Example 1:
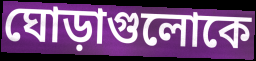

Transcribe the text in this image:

ঘোড়াগুলোকে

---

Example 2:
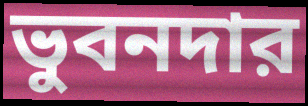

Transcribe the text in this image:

ভুবনদার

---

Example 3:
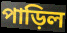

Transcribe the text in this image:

পাড়িল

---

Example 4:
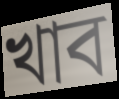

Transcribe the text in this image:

খাব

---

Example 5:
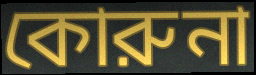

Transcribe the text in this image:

কোরুনা